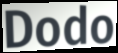
Dodo